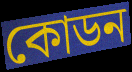
কোডন